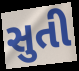
સુતી